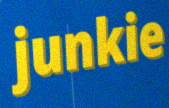
junkie